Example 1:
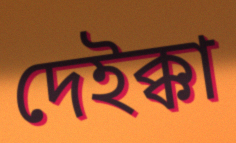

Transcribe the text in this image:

দেইক্কা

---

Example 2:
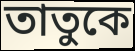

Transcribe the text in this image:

তাতুকে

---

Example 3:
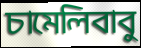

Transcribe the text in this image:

চামেলিবাবু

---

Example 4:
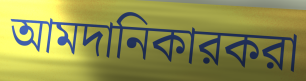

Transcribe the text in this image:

আমদানিকারকরা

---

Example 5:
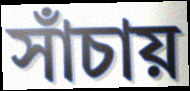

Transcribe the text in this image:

সাঁচায়